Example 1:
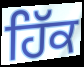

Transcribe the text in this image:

ਹਿੱਕ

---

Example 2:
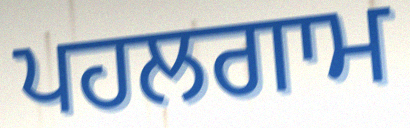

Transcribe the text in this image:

ਪਹਲਗਾਮ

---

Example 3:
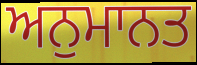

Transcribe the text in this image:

ਅਨੁਮਾਨਤ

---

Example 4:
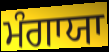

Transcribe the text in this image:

ਮੰਗਾਯਾ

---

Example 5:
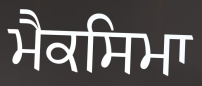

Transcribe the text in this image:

ਮੈਕਸਿਮਾ